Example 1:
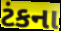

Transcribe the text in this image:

ટંકના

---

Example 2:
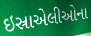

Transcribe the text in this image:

ઇસ્રાએલીઓના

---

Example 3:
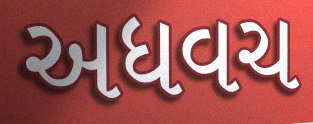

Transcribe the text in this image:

અધવચ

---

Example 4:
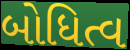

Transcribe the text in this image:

બોધિત્વ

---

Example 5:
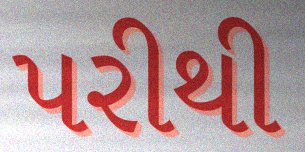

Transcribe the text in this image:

પરીથી